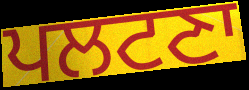
ਪਲਟਣਾ